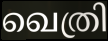
ഖെത്രി